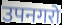
उपनगरो